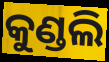
କୁଣ୍ଡଲି